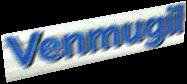
Venmugil